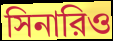
সিনারিও